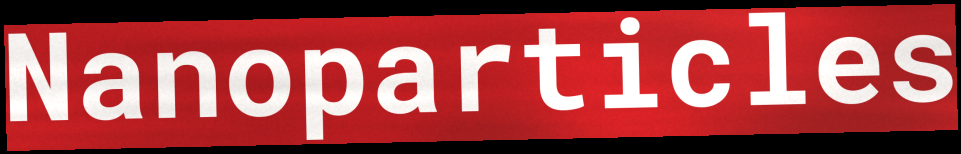
Nanoparticles